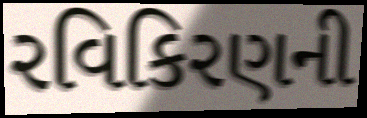
રવિકિરણની